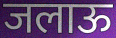
जलाऊ